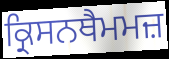
ਕ੍ਰਿਸਨਥੈਮਮਜ਼